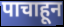
पाचाहून